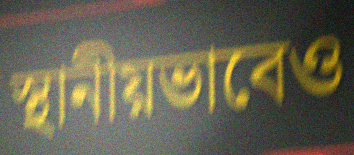
স্থানীয়ভাবেও